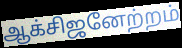
ஆக்சிஜனேற்றம்